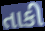
તાકી